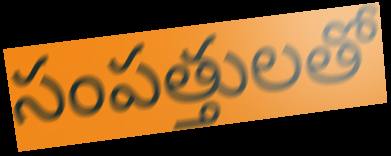
సంపత్తులతో